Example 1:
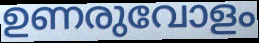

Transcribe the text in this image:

ഉണരുവോളം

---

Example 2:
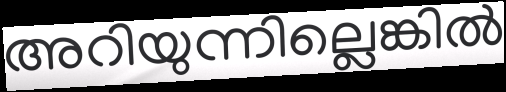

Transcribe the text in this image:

അറിയുന്നില്ലെങ്കിൽ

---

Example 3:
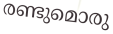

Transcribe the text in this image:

രണ്ടുമൊരു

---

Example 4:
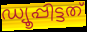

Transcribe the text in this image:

ഡ്യൂപ്പിട്ടത്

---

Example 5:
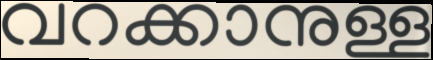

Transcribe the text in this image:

വറക്കാനുള്ള